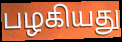
பழகியது